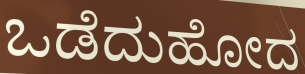
ಒಡೆದುಹೋದ